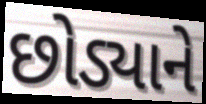
છોડ્યાને